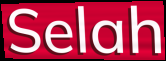
Selah